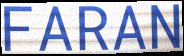
FARAN